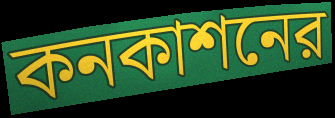
কনকাশনের